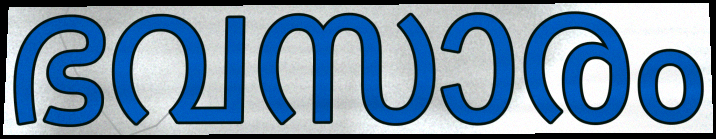
ഭവസാരം